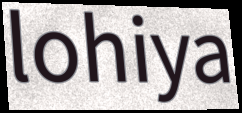
lohiya